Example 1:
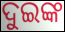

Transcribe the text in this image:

ଦୁଇଙ୍କ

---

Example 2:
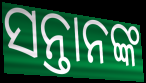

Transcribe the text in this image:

ସନ୍ତାନଙ୍କ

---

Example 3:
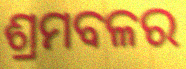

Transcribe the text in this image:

ଶ୍ରମବଳର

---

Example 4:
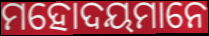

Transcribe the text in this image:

ମହୋଦୟମାନେ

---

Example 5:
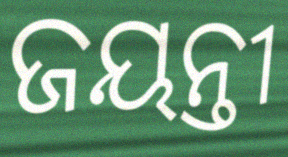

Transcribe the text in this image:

ଜୟନ୍ତୀ